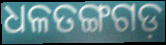
ଧଳତଙ୍ଗଗଡ଼